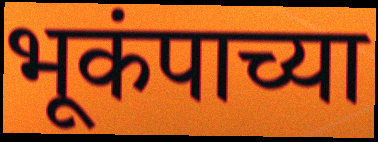
भूकंपाच्या